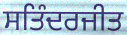
ਸਤਿੰਦਰਜੀਤ